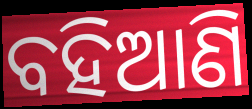
ବହିଆଣି